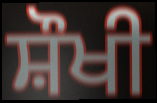
ਸ਼ੌਖੀ